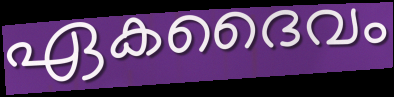
ഏകദൈവം